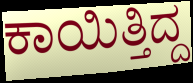
ಕಾಯಿತ್ತಿದ್ದ